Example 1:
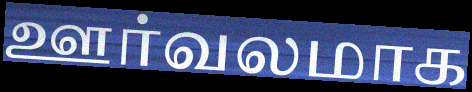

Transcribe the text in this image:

ஊர்வலமாக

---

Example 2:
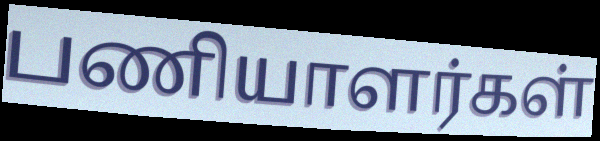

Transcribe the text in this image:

பணியாளர்கள்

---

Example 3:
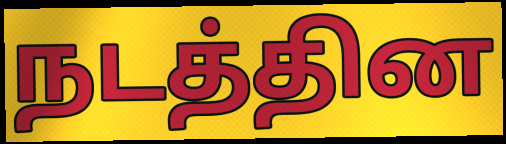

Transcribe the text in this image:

நடத்தின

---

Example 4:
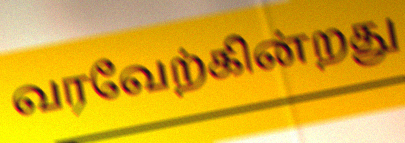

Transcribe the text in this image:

வரவேற்கின்றது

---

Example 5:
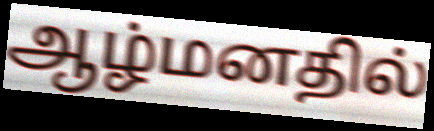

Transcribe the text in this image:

ஆழ்மனதில்